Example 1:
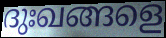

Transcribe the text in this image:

ദുഃഖങ്ങളെ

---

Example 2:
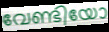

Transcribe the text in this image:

വേണ്ടിയോ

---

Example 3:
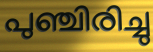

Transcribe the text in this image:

പുഞ്ചിരിച്ചു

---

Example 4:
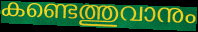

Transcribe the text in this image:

കണ്ടെത്തുവാനും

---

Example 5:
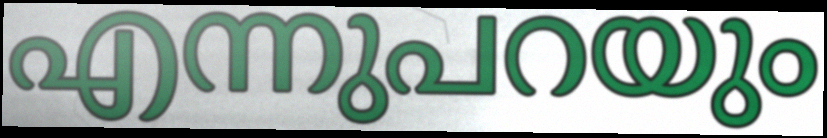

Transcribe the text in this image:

എന്നുപറയും